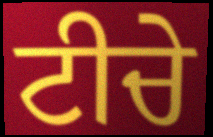
ਟੀਚੇ